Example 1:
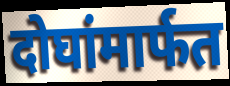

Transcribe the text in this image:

दोघांमार्फत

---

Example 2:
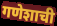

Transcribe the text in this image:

गणेशाची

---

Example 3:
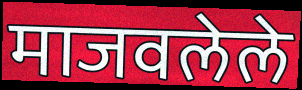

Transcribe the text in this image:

माजवलेले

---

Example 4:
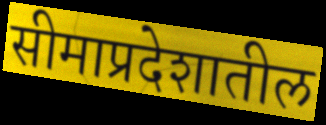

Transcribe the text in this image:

सीमाप्रदेशातील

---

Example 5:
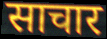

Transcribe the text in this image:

साचार